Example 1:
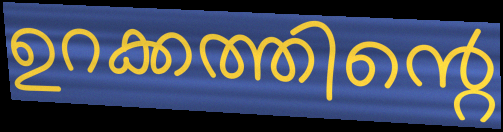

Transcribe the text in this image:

ഉറക്കത്തിന്റെ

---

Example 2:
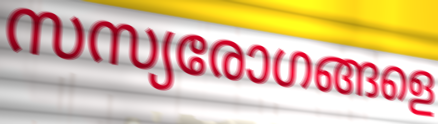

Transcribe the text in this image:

സസ്യരോഗങ്ങളെ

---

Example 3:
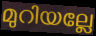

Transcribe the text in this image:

മുറിയല്ലേ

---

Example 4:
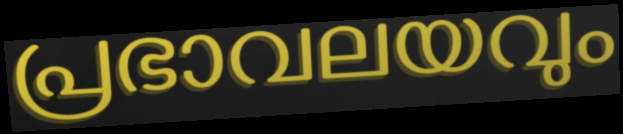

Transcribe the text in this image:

പ്രഭാവലയവും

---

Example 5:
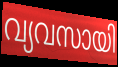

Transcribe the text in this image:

വ്യവസായി